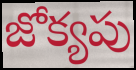
జోక్యపు